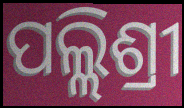
ପଲ୍ଲିଶ୍ରୀ